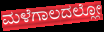
ಮಳೆಗಾಲದಲ್ಲೋ